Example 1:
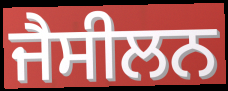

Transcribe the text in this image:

ਜੈਸੀਲਨ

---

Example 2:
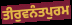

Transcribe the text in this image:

ਤੀਰੁਵਨੰਤਪੁਰਮ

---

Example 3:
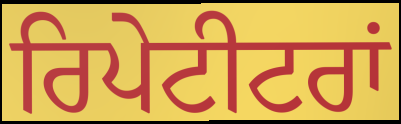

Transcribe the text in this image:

ਰਿਪੇਟੀਟਰਾਂ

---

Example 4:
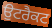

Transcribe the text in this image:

ਉਟਰੈਕਟ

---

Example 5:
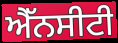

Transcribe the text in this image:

ਐੱਨਸੀਟੀ